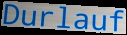
Durlauf